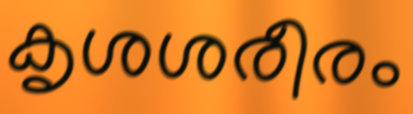
കൃശശരീരം